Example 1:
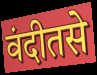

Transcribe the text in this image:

वंदीतसे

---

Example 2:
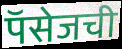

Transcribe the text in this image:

पॅसेजची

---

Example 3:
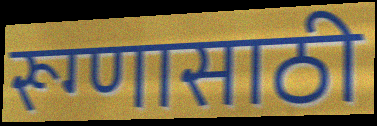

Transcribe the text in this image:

रूग्णासाठी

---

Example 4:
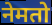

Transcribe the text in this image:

नेमतो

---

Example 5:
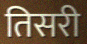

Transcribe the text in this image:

तिसरी